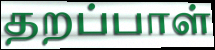
தறப்பாள்